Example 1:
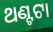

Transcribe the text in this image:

ଥଣ୍ଟଟା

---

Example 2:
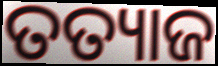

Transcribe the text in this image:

ତତ୍ୟାଜ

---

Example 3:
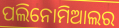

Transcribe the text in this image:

ପଲିନୋମିଆଲର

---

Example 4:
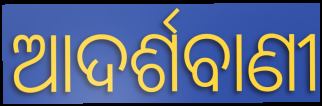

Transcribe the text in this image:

ଆଦର୍ଶବାଣୀ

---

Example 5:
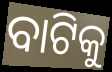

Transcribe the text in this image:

ବାଟିକୁ